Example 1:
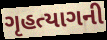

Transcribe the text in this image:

ગૃહત્યાગની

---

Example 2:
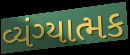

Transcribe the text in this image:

વ્યંગ્યાત્મક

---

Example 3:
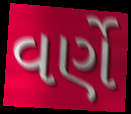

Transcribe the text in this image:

વર્ણે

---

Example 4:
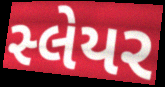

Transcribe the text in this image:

સ્લેયર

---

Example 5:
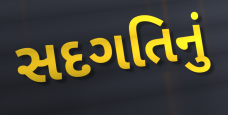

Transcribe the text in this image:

સદગતિનું